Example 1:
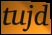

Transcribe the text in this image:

tujd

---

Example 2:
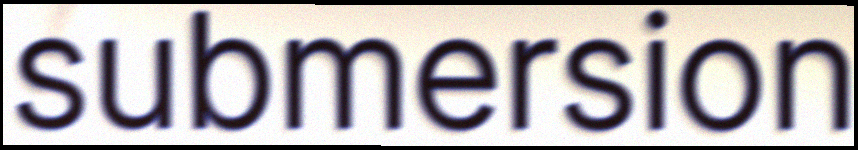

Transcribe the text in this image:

submersion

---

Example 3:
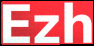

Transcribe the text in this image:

Ezh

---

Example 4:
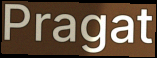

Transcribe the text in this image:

Pragat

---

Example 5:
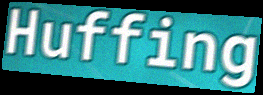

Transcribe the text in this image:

Huffing